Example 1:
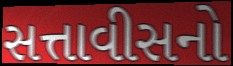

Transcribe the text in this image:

સત્તાવીસનો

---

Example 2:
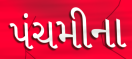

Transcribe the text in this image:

પંચમીના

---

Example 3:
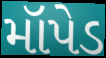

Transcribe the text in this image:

મૉપેડ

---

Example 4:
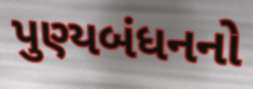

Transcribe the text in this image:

પુણ્યબંધનનો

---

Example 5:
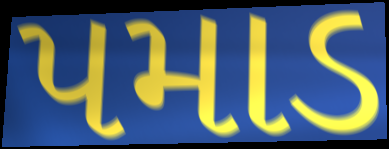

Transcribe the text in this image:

પમાડ